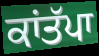
ਕਾਂਤੱਪਾ